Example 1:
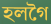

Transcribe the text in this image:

হলগৈ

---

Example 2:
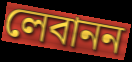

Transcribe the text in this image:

লেবানন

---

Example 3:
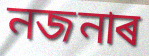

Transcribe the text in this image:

নজনাৰ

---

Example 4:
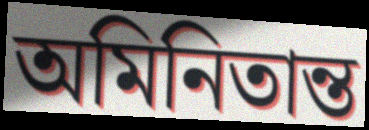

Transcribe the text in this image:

অমিনিতান্ত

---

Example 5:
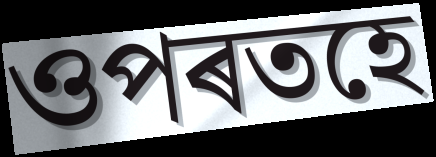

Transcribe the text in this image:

ওপৰতহে